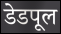
डेडपूल